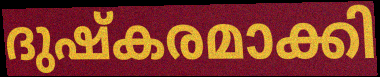
ദുഷ്കരമാക്കി